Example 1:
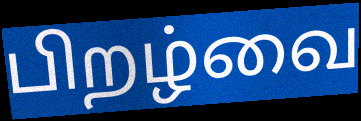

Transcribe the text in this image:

பிறழ்வை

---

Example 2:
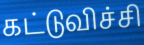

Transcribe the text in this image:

கட்டுவிச்சி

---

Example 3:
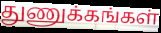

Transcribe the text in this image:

துணுக்கங்கள்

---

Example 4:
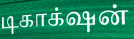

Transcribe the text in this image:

டிகாக்‌ஷன்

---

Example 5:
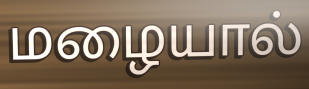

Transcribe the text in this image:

மழையால்